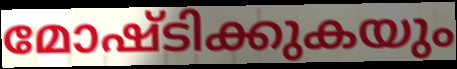
മോഷ്ടിക്കുകയും